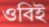
ওবিই